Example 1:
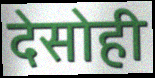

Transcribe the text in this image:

देसोही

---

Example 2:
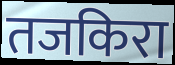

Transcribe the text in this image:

तजकिरा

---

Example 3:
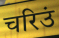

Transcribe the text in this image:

चरिउं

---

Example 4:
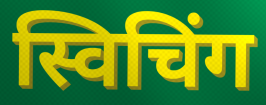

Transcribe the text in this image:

स्विचिंग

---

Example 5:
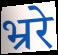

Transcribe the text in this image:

भ्ररे